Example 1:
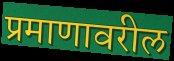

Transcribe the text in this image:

प्रमाणावरील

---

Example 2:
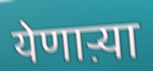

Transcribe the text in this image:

येणाऱ्‍या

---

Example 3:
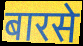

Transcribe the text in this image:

बारसे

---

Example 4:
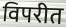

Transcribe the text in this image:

विपरीत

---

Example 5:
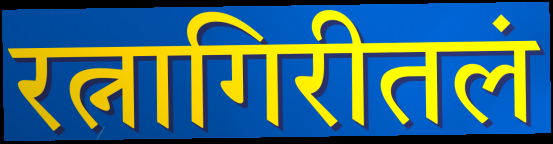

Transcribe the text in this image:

रत्नागिरीतलं